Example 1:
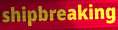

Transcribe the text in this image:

shipbreaking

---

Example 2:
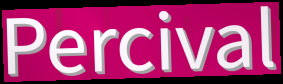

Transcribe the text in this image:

Percival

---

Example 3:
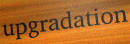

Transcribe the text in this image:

upgradation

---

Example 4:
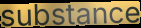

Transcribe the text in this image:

substance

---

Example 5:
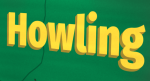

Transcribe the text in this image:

Howling